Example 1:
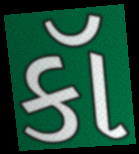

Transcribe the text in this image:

કૉ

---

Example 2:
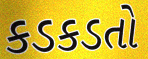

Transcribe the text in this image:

કડકડતો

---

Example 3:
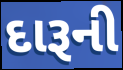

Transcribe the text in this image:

દારૂની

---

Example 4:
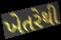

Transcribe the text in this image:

ખેતરેથી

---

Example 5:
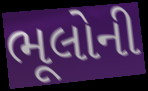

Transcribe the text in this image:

ભૂલોની